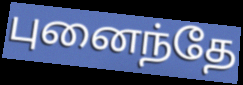
புனைந்தே